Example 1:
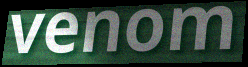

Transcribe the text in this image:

venom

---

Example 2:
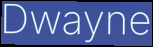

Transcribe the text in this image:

Dwayne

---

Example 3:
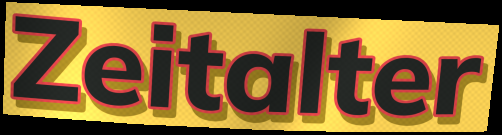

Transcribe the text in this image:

Zeitalter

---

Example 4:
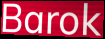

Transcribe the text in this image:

Barok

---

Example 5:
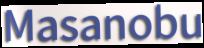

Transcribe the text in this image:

Masanobu